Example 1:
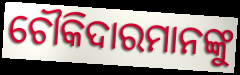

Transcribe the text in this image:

ଚୌକିଦାରମାନଙ୍କୁ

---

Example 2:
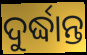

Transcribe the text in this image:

ଦୁର୍ଦ୍ଧାନ୍ତ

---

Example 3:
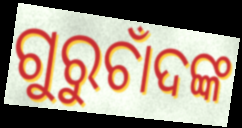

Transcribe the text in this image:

ଗୁରୁଚାଁଦଙ୍କ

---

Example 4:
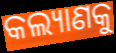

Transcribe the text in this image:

କଲ୍ୟାଣକୁ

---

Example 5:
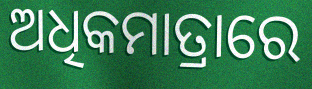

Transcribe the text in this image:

ଅଧିକମାତ୍ରାରେ